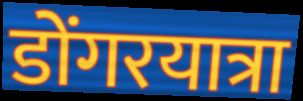
डोंगरयात्रा